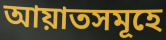
আয়াতসমূহে